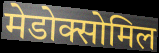
मेडोक्सोमिल